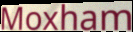
Moxham